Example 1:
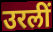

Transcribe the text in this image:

उरलीं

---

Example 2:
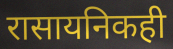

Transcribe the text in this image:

रासायनिकही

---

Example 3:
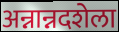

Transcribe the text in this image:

अन्नान्नदशेला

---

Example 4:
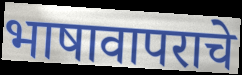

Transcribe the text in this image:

भाषावापराचे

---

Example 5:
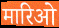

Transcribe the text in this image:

मारिओ